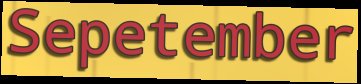
Sepetember